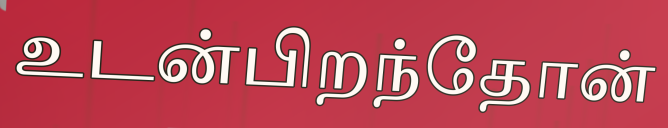
உடன்பிறந்தோன்